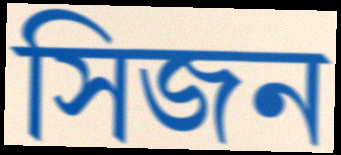
সিজন